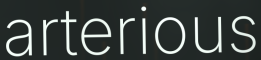
arterious